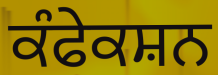
ਕੰਫੇਕਸ਼ਨ